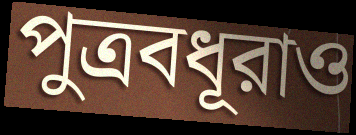
পুত্রবধূরাও